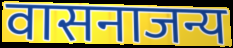
वासनाजन्य